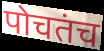
पोचतंच